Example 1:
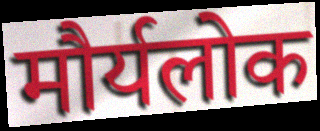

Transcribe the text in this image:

मौर्यलोक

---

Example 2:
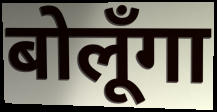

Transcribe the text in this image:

बोलूँगा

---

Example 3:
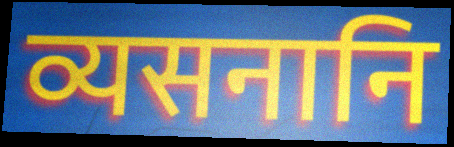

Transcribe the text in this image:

व्यसनानि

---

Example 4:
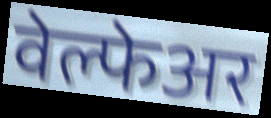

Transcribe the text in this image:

वेल्फेअर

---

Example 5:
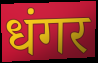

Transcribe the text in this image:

धंगर